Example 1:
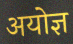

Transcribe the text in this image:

अयोज्ञ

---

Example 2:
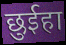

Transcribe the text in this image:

छुईहा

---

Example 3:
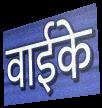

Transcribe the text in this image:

वाईके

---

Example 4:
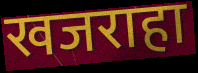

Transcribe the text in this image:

खजराहा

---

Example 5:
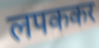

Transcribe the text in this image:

लपककर